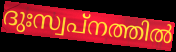
ദുഃസ്വപ്നത്തിൽ